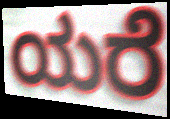
ಯರೆ